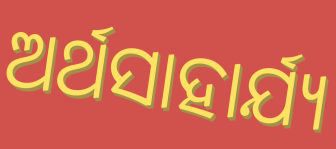
ଅର୍ଥସାହାର୍ଯ୍ୟ